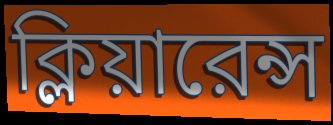
ক্লিয়ারেন্স